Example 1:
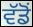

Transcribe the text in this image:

ਵੱਡੋਂ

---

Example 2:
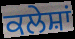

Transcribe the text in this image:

ਕਲੇਸ਼ਾਂ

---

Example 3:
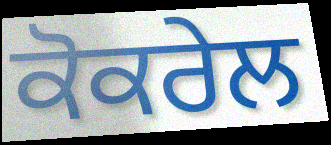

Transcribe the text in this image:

ਕੋਕਰੇਲ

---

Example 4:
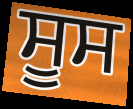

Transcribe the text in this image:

ਸੂਸ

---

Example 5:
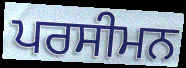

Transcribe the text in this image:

ਪਰਸੀਮਨ